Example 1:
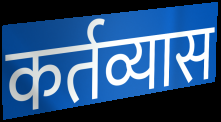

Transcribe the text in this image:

कर्तव्यास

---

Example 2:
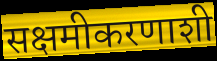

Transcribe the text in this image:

सक्षमीकरणाशी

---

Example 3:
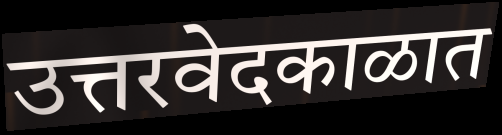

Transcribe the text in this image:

उत्तरवेदकाळात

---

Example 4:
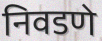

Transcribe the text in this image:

निवडणे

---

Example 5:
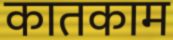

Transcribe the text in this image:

कातकाम